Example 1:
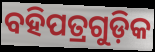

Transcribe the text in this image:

ବହିପତ୍ରଗୁଡ଼ିକ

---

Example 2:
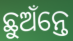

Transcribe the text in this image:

ଛୁଅଁନ୍ତେ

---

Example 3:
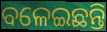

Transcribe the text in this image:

ବଳେଇଛନ୍ତି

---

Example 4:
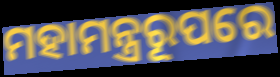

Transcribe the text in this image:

ମହାମନ୍ତ୍ରରୂପରେ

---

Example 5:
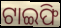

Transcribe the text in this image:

ଟାଇଫି